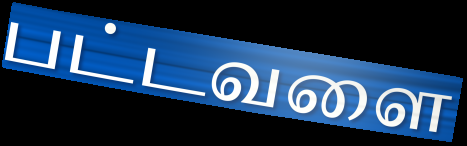
பட்டவளை